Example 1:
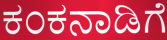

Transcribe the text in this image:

ಕಂಕನಾಡಿಗೆ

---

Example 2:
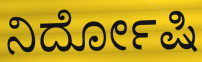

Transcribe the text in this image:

ನಿರ್ದೋಷಿ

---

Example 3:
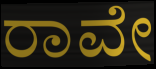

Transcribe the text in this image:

ರಾವೇ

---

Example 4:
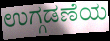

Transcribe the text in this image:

ಉಗ್ಗಡಣೆಯ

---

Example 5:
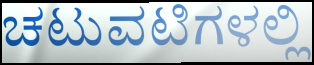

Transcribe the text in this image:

ಚಟುವಟಿಗಳಲ್ಲಿ